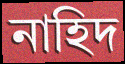
নাহিদ